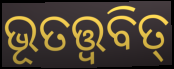
ଭୂତତ୍ତ୍ୱବିତ୍